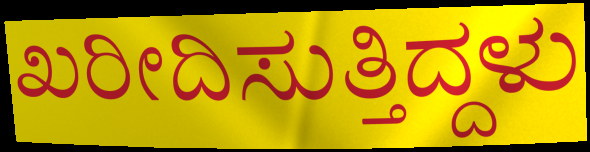
ಖರೀದಿಸುತ್ತಿದ್ದಳು